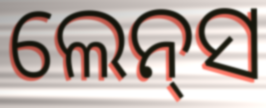
ଲେନ୍‍ସ